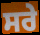
ਸਰੇ